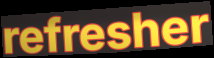
refresher